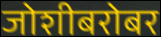
जोशीबरोबर